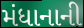
મંધાનાની